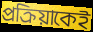
প্রক্রিয়াকেই